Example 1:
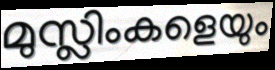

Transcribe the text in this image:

മുസ്ലിംകളെയും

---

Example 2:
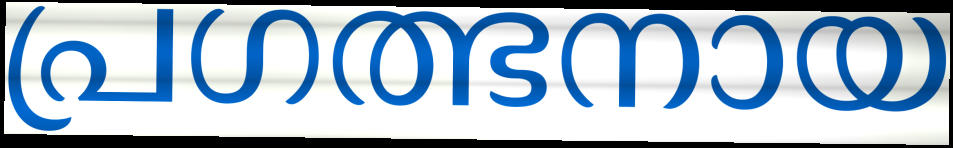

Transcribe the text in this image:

പ്രഗത്ഭനായ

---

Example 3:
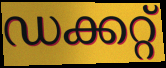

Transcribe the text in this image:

ഡക്കറ്റ്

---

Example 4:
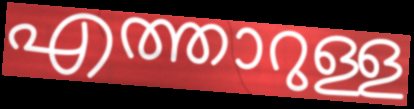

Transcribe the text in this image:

എത്താറുള്ള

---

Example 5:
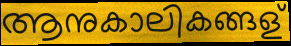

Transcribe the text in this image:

ആനുകാലികങ്ങള്